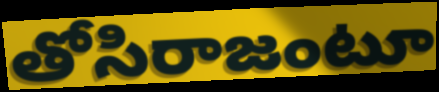
తోసిరాజంటూ